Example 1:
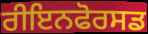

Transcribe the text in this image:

ਰੀਇਨਫੋਰਸਡ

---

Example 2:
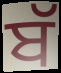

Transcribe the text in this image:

ਬੱ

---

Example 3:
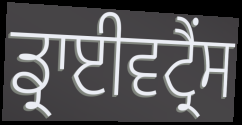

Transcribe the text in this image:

ਡ੍ਰਾਈਵਟ੍ਰੈਂਸ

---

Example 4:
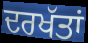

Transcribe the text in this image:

ਦਰਖੱਤਾਂ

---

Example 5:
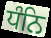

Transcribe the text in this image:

ਧੰਨਿ